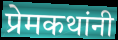
प्रेमकथांनी